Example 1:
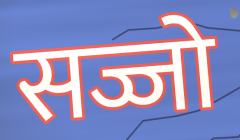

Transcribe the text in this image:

सज्जो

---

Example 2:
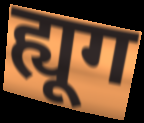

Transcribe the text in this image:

ह्यूग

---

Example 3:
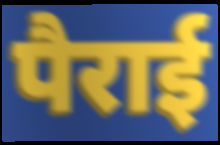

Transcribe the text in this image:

पैराई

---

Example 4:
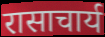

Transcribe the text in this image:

रासाचार्य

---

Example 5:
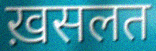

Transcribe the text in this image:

ख़सलत